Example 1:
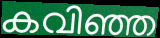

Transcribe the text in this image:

കവിഞ്ഞ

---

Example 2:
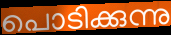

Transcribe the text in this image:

പൊടിക്കുന്നു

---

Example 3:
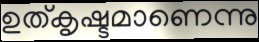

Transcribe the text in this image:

ഉത്കൃഷ്ടമാണെന്നു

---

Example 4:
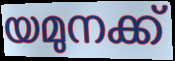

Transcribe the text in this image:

യമുനക്ക്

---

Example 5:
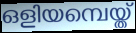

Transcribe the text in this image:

ഒളിയമ്പെയ്ത്